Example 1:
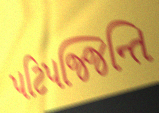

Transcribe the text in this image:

પટિપજ્જિન્તિ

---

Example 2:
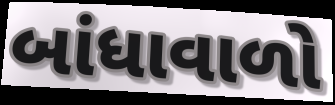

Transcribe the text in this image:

બાંધાવાળો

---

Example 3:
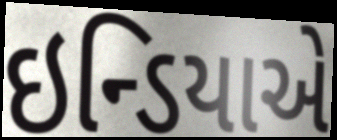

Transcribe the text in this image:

ઇન્ડિયાએ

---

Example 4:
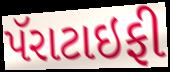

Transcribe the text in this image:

પૅરાટાઇફી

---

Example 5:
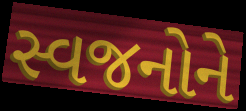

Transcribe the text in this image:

સ્વજનોને